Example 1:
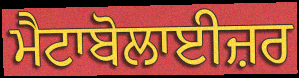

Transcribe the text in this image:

ਮੈਟਾਬੋਲਾਈਜ਼ਰ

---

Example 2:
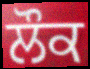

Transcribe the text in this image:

ਲੌਕ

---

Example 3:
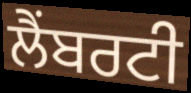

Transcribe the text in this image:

ਲੈਂਬਰਟੀ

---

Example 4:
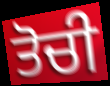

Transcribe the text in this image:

ਤੋਚੀ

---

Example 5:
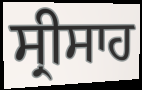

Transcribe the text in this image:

ਸ੍ਰੀਸਾਹ